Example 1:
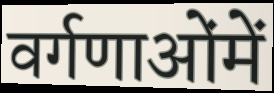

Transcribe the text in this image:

वर्गणाओंमें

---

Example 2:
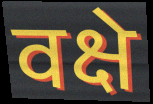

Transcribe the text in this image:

वक्षे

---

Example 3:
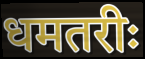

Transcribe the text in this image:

धमतरीः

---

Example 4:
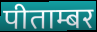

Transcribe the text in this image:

पीताम्बर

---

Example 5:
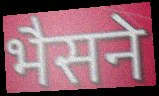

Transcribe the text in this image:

भैसने